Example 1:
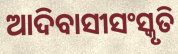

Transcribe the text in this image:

ଆଦିବାସୀସଂସ୍କୃତି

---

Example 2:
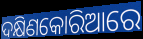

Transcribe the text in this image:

ଦକ୍ଷିଣକୋରିଆରେ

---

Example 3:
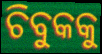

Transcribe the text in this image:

ଚିବୁକକୁ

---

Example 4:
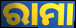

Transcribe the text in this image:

ରାମା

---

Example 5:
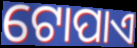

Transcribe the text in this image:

ଟୋପାଏ